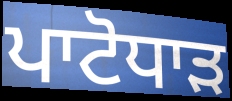
ਪਾਟੋਧਾੜ